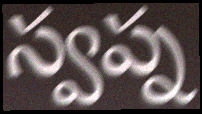
స్వప్న